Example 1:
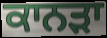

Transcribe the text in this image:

ਕਾਨੜਾ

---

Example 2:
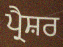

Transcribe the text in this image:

ਪ੍ਰੈਸ਼ਰ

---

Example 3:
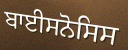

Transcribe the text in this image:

ਬਾਈਸਨੋਸਿਸ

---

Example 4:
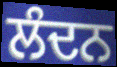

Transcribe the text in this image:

ਲੰਦਨ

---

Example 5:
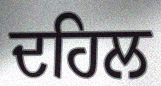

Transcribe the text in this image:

ਦਹਿਲ